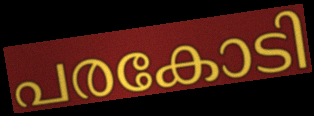
പരകോടി